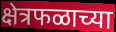
क्षेत्रफळाच्या